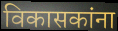
विकासकांना